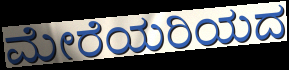
ಮೇರೆಯರಿಯದ